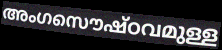
അംഗസൌഷ്ഠവമുള്ള